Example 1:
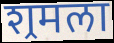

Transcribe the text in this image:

श्रमला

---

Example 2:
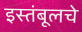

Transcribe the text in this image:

इस्तंबूलचे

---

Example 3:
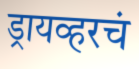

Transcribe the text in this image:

ड्रायव्हरचं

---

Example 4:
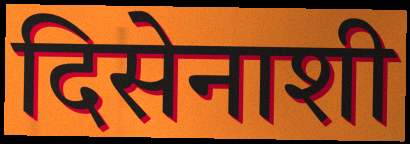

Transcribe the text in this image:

दिसेनाशी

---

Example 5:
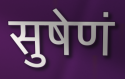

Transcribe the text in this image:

सुषेणं